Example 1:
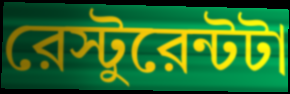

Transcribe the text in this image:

রেস্টুরেন্টটা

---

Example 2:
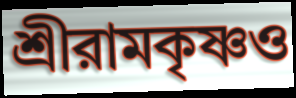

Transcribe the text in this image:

শ্রীরামকৃষ্ণও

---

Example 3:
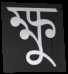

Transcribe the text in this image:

ক্ষু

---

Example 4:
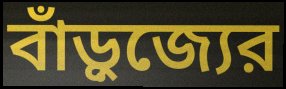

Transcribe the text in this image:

বাঁড়ুজ্যের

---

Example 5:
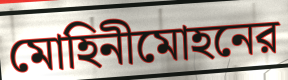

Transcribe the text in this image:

মোহিনীমোহনের